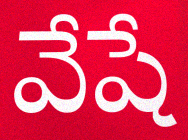
వేషే